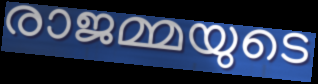
രാജമ്മയുടെ